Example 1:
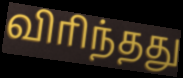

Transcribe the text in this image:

விரிந்தது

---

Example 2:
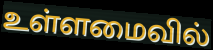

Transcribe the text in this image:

உள்ளமைவில்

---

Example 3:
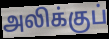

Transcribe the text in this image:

அலிக்குப்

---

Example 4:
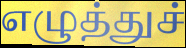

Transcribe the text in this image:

எழுத்துச்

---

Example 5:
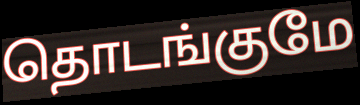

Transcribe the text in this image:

தொடங்குமே